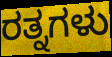
ರತ್ನಗಳು